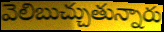
వెలిబుచ్చుతున్నారు